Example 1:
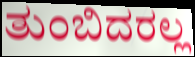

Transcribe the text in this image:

ತುಂಬಿದರಲ್ಲ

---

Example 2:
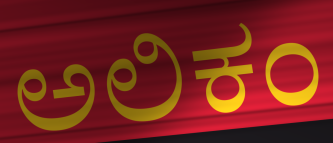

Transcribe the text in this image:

ಅಲಿಕಂ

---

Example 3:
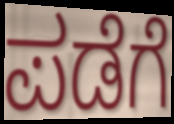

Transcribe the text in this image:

ಪಡೆಗೆ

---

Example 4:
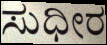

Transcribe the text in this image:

ಸುಧೀರ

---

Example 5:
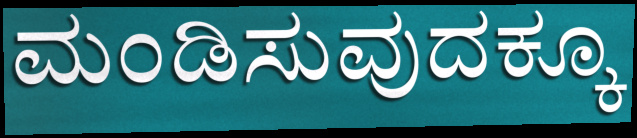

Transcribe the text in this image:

ಮಂಡಿಸುವುದಕ್ಕೂ